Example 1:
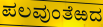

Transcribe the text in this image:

ಪಲವುಂತೆಱದ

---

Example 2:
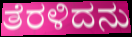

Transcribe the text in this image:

ತೆರಳಿದನು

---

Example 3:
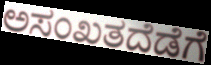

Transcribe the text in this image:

ಅಸಂಖತದೆಡೆಗೆ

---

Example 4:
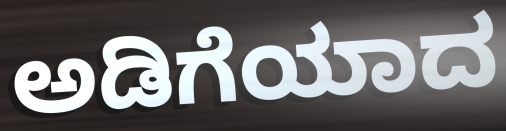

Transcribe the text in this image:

ಅಡಿಗೆಯಾದ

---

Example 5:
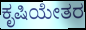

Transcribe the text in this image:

ಕೃಷಿಯೇತರ